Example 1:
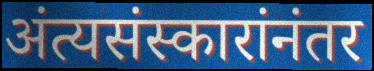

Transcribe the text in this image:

अंत्यसंस्कारांनंतर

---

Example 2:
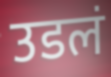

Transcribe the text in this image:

उडलं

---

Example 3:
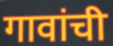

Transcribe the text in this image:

गावांची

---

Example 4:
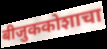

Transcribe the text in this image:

बीजुककोशाचा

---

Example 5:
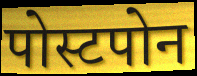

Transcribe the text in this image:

पोस्टपोन